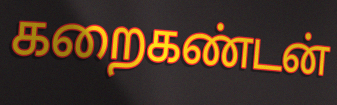
கறைகண்டன்